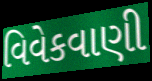
વિવેકવાણી